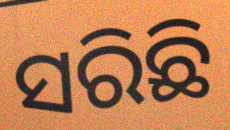
ସରିଛି